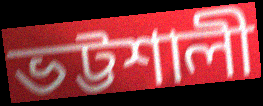
ভট্টশালী